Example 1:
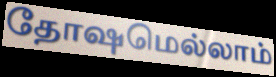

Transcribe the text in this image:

தோஷமெல்லாம்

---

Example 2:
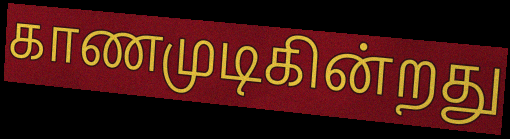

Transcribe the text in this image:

காணமுடிகின்றது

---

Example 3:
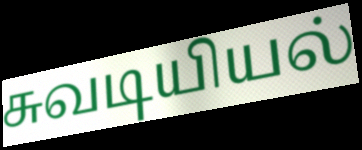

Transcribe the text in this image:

சுவடியியல்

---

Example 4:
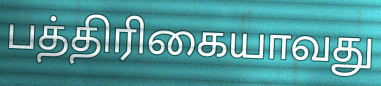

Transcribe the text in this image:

பத்திரிகையாவது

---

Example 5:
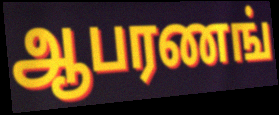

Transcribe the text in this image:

ஆபரணங்